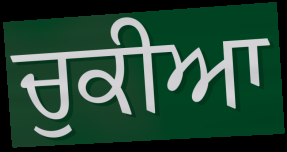
ਚੁਕੀਆ